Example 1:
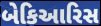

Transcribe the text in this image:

બેકિઆરિસ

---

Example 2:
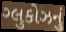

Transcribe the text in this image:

ગ્લુકોઝનું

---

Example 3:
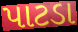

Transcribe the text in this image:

પાટડા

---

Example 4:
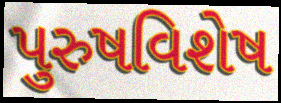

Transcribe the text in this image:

પુરુષવિશેષ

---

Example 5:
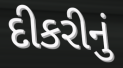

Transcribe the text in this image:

દીકરીનું